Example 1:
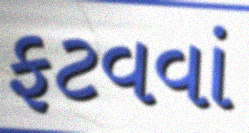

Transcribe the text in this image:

ફટવવાં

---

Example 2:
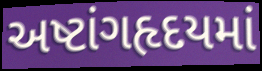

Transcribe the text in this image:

અષ્ટાંગહૃદયમાં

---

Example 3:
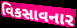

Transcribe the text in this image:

વિકસાવનાર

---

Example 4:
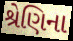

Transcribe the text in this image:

શ્રેણિના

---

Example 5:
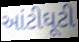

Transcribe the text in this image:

આંટીઘૂટી